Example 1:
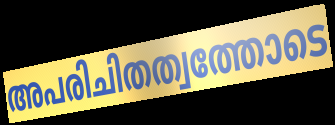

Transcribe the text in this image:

അപരിചിതത്വത്തോടെ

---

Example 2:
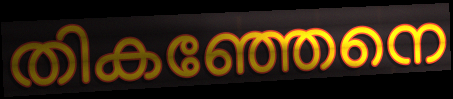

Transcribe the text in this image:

തികഞ്ഞേനെ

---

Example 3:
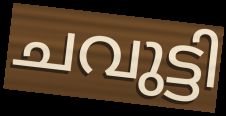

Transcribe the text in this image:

ചവുട്ടി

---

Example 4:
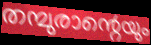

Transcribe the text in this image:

തമ്പുരാന്റെയും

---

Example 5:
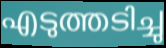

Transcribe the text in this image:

എടുത്തടിച്ചു